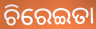
ଚିରେଇତା